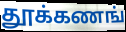
தூக்கணங்